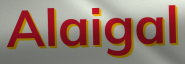
Alaigal